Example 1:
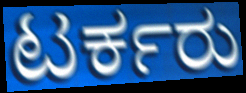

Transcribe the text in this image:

ಟರ್ಕರು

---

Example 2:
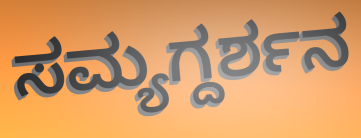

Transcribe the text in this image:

ಸಮ್ಯಗ್ದರ್ಶನ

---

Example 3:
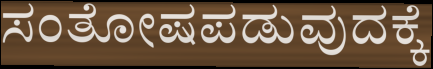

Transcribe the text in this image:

ಸಂತೋಷಪಡುವುದಕ್ಕೆ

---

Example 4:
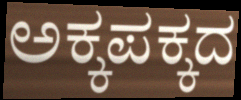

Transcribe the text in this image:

ಅಕ್ಕಪಕ್ಕದ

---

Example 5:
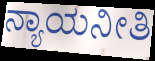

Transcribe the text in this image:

ನ್ಯಾಯನೀತಿ